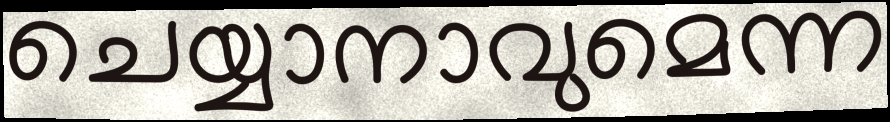
ചെയ്യാനാവുമെന്ന